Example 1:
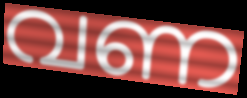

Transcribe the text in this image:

വണ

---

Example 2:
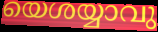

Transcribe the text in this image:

യെശയ്യാവു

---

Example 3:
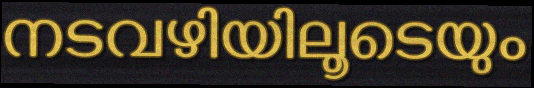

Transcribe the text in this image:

നടവഴിയിലൂടെയും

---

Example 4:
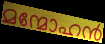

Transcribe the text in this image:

മന്മോഹൻ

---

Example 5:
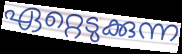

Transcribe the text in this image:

ഏറ്റെടുക്കുന്ന